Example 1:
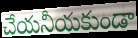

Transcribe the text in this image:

చేయనీయకుండా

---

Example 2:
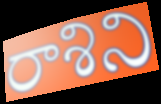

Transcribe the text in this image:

రాశిని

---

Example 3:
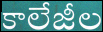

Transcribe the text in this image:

కాలేజీల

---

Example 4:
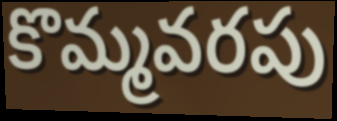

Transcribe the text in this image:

కొమ్మవరపు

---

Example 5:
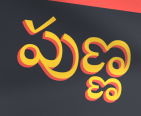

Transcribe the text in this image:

పుణ్ణ